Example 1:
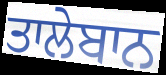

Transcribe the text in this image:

ਤਾਲੇਬਾਨ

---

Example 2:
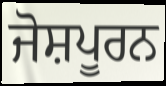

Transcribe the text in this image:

ਜੋਸ਼ਪੂਰਨ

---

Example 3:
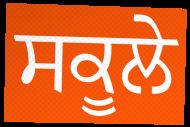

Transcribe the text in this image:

ਸਕੂਲੇ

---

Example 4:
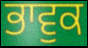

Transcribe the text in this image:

ਭਾਵੁਕ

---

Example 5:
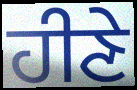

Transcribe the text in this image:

ਹੀਣੇ